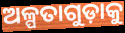
ଅଳ୍ପତାଗୁଡ଼ାକୁ